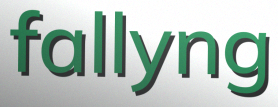
fallyng